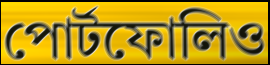
পোর্টফোলিও